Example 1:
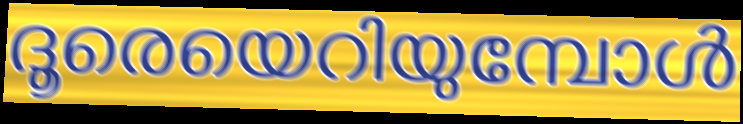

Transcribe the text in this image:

ദൂരെയെറിയുമ്പോൾ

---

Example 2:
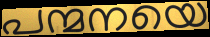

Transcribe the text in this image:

പന്മനയെ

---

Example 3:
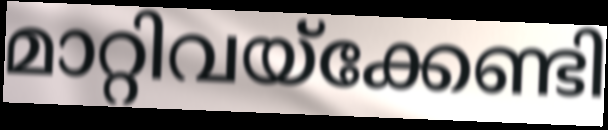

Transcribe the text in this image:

മാറ്റിവയ്ക്കേണ്ടി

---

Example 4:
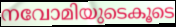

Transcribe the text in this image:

നവോമിയുടെകൂടെ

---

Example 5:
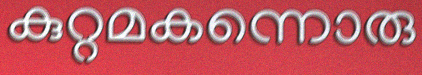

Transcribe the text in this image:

കുറ്റമകന്നൊരു